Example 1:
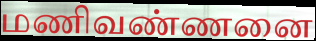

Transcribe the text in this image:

மணிவண்ணனை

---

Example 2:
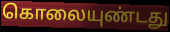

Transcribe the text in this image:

கொலையுண்டது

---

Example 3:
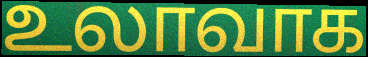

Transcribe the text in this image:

உலாவாக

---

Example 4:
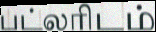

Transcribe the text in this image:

பட்லரிடம்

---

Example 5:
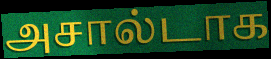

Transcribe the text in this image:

அசால்டாக